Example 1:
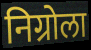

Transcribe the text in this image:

निग्रोला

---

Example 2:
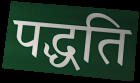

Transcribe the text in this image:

पद्धति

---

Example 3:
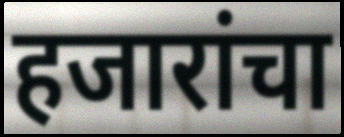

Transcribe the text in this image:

हजारांचा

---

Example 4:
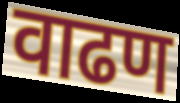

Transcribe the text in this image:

वाढण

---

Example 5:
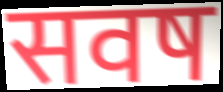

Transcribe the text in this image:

सवष